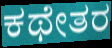
ಕಥೇತರ